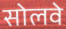
सोलवे